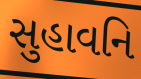
સુહાવનિ